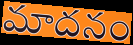
మాదనం